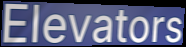
Elevators